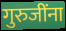
गुरुजींना